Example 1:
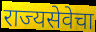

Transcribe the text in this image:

राज्यसेवेचा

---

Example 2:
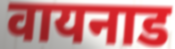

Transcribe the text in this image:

वायनाड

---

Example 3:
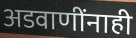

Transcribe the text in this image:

अडवाणींनाही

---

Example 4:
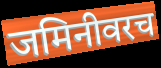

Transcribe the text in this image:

जमिनीवरच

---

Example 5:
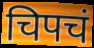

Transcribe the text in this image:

चिपचं